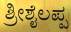
ಶ್ರೀಶೈಲಪ್ಪ